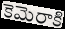
కెమెరాకి